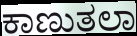
ಕಾಣುತಲಾ